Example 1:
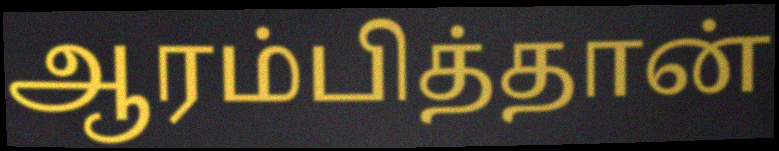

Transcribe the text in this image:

ஆரம்பித்தான்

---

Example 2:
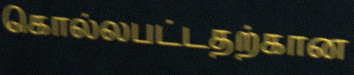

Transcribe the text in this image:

கொல்லபட்டதற்கான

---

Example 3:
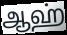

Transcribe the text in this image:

ஆஹ்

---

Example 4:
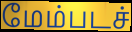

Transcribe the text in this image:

மேம்படச்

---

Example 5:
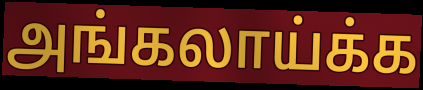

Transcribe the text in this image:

அங்கலாய்க்க